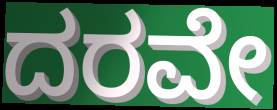
ದರವೇ